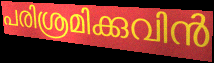
പരിശ്രമിക്കുവിൻ